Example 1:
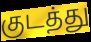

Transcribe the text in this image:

குடத்து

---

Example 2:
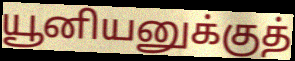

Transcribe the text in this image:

யூனியனுக்குத்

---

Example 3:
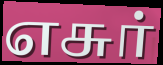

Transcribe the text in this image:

எசுர்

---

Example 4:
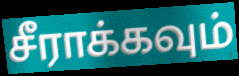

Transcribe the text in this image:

சீராக்கவும்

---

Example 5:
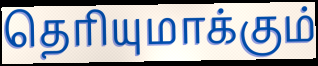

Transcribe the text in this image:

தெரியுமாக்கும்